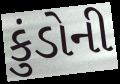
કુંડોની